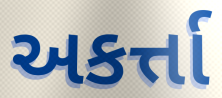
અકર્ત્તા